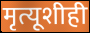
मृत्यूशीही